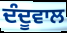
ਦੰਦੂਵਾਲ